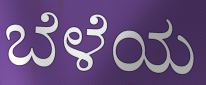
ಬೆಳೆಯ